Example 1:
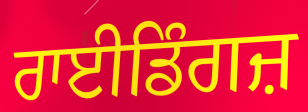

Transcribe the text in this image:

ਰਾਈਡਿੰਗਜ਼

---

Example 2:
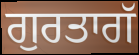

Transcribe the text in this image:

ਗੁਰਤਾਗੱ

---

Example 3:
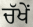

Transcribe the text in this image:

ਚੱਖੇਂ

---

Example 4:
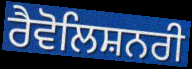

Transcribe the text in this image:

ਰੈਵੋਲਿਸ਼ਨਰੀ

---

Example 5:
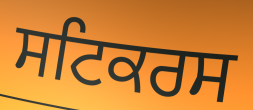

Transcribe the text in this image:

ਸਟਿਕਰਸ